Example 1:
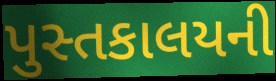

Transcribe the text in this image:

પુસ્તકાલયની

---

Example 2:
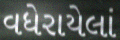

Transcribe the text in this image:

વધેરાયેલાં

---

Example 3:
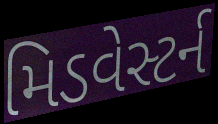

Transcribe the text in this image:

મિડવેસ્ટર્ન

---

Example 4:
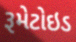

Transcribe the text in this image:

રૂમેટોઇડ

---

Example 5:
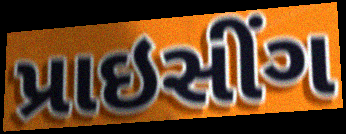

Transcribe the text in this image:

પ્રાઇસીંગ